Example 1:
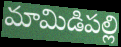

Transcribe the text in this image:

మామిడిపల్లి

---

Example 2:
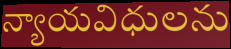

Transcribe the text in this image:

న్యాయవిధులను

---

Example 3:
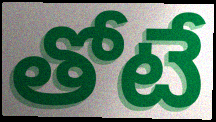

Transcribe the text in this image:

తోటే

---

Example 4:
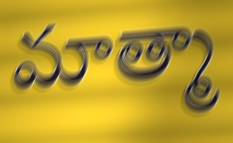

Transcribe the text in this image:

మాత్మా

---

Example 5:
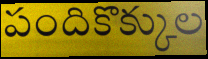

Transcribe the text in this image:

పందికొక్కుల